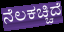
ನೆಲಕಚ್ಚಿದೆ